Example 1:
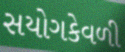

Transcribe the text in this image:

સયોગકેવળી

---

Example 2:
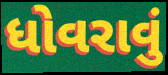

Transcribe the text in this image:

ધોવરાવું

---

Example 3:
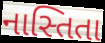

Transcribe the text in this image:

નાસ્તિતા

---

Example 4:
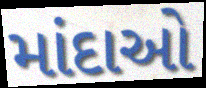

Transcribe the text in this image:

માંદાઓ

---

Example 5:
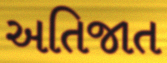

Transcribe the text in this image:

અતિજાત